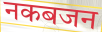
नकबजन